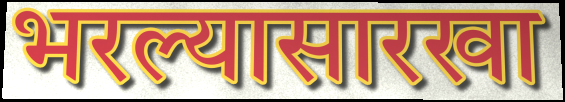
भरल्यासारखा